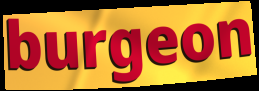
burgeon